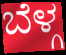
ಬೆಳ್ಗ